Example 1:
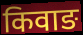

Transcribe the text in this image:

किवाङ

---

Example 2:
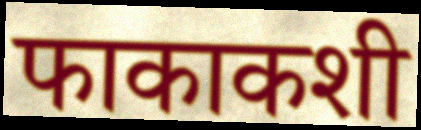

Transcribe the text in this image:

फाकाकशी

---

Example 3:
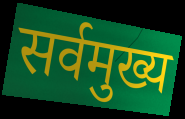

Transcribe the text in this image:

सर्वमुख्य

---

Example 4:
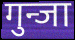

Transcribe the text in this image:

गुन्जा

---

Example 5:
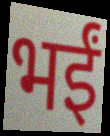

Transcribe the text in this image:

भईं